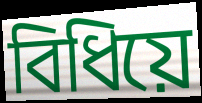
বিধিয়ে